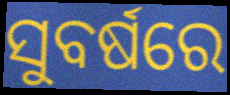
ସୁବର୍ଷରେ